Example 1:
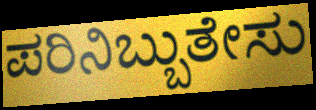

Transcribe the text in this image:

ಪರಿನಿಬ್ಬುತೇಸು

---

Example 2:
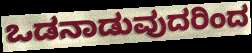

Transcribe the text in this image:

ಒಡನಾಡುವುದರಿಂದ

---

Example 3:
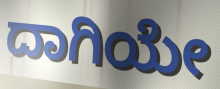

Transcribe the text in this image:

ದಾಗಿಯೇ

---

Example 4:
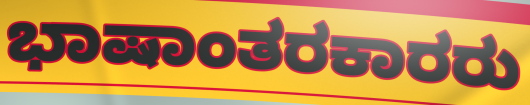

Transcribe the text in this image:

ಭಾಷಾಂತರಕಾರರು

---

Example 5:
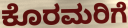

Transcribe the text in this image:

ಕೊರಮರಿಗೆ